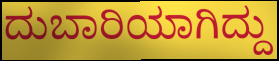
ದುಬಾರಿಯಾಗಿದ್ದು